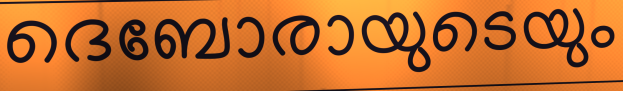
ദെബോരായുടെയും